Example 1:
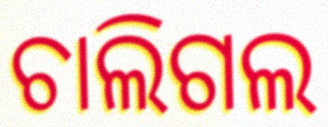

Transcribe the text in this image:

ଚାଲିଗଲ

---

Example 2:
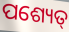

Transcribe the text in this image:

ପଶ୍ୟେତ୍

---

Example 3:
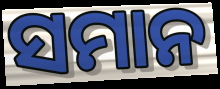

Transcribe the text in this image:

ସମାନ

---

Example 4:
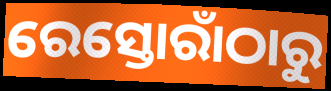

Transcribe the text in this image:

ରେସ୍ତୋରାଁଠାରୁ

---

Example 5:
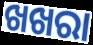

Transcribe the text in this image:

ଖଖରା